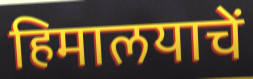
हिमालयाचें